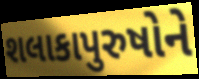
શલાકાપુરુષોને